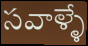
సవాళ్ళే